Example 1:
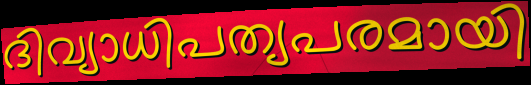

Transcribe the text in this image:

ദിവ്യാധിപത്യപരമായി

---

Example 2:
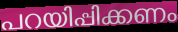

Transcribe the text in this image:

പറയിപ്പിക്കണം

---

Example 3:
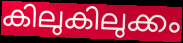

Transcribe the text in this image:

കിലുകിലുക്കം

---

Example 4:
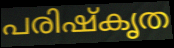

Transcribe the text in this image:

പരിഷ്കൃത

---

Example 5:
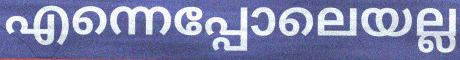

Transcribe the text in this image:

എന്നെപ്പോലെയല്ല